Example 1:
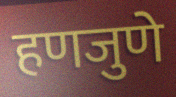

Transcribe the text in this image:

हणजुणे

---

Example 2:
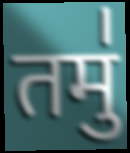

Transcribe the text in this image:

तमु॑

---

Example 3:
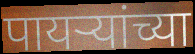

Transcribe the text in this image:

पायर्‍यांच्या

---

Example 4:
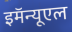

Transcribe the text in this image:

इमॅन्यूएल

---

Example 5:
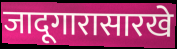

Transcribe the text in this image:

जादूगारासारखे